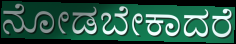
ನೋಡಬೇಕಾದರೆ